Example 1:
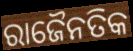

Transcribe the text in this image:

ରାଜୈନତିକ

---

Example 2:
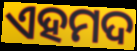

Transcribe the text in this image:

ଏହମଦ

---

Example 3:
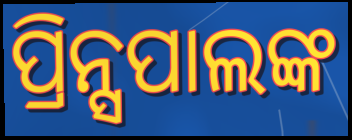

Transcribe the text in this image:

ପ୍ରିନ୍ସପାଲଙ୍କ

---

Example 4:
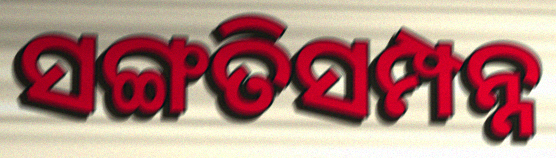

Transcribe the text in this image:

ସଙ୍ଗତିସମ୍ପନ୍ନ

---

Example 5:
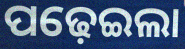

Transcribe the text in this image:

ପଢ଼େଇଲା